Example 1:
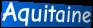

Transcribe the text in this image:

Aquitaine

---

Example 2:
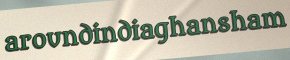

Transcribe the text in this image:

aroundindiaghansham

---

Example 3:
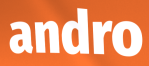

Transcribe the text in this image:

andro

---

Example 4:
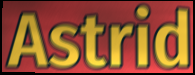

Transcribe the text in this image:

Astrid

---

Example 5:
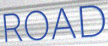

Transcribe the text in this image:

ROAD